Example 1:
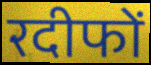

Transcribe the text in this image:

रदीफों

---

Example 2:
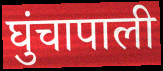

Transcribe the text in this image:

घुंचापाली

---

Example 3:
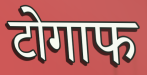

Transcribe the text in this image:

टोगाफ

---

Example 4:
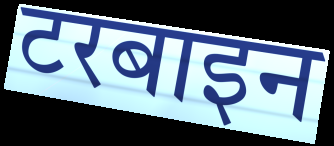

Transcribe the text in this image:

टरबाइन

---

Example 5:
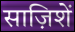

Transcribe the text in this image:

साज़िशें